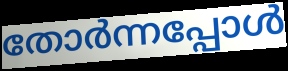
തോർന്നപ്പോൾ